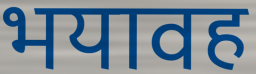
भयावह